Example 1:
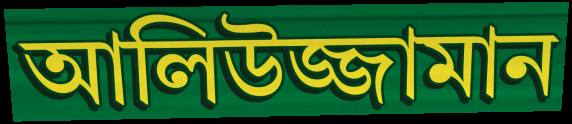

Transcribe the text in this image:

আলিউজ্জামান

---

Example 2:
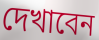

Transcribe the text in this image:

দেখাবেন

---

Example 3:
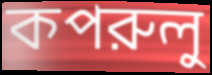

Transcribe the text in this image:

কপরুলু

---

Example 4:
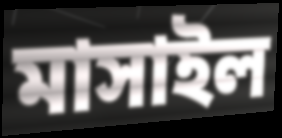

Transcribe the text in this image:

মাসাইল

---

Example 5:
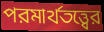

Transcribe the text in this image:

পরমার্থতত্ত্বের